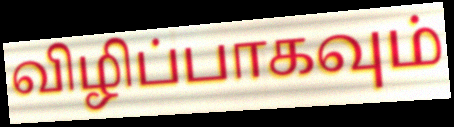
விழிப்பாகவும்